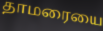
தாமரையை